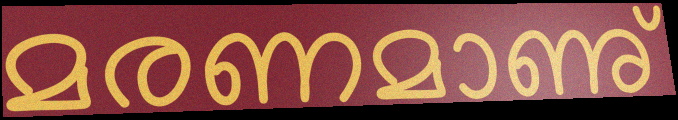
മരണമാണു്